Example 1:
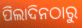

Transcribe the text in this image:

ପିଲାଦିନଠାରୁ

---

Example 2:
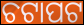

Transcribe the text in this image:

ଚଟାପଟ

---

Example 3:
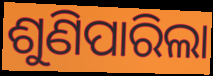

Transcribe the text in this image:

ଶୁଣିପାରିଲା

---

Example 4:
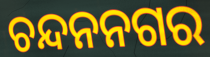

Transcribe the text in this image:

ଚନ୍ଦନନଗର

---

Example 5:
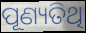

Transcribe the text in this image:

ପୂଣ୍ୟତିଥି